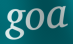
goa